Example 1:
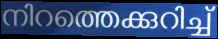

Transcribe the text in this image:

നിറത്തെക്കുറിച്ച്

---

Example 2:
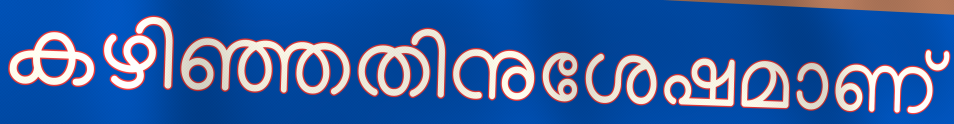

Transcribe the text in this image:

കഴിഞ്ഞതിനുശേഷമാണ്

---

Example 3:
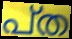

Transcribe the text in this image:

പ്‌ത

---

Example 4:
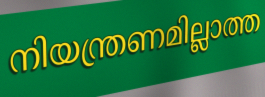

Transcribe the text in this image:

നിയന്ത്രണമില്ലാത്ത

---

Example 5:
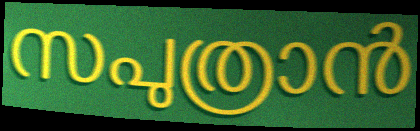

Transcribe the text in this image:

സപുത്രാൻ